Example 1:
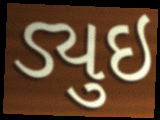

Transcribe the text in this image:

ડ્યુઇ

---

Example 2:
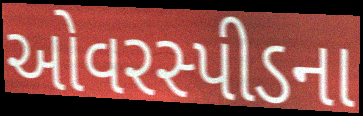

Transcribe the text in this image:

ઓવરસ્પીડના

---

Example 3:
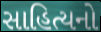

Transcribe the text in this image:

સાહિત્યનો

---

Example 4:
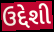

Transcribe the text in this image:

ઉદ્દેશી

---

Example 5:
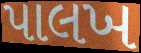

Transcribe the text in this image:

પાલખ